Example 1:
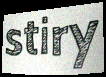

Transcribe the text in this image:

stiry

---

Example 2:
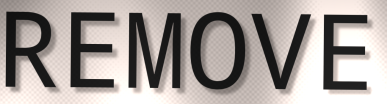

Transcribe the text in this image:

REMOVE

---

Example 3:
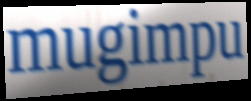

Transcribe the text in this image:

mugimpu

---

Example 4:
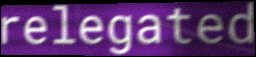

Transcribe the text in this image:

relegated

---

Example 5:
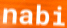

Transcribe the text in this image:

nabi